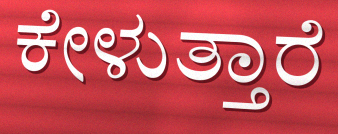
ಕೇಳುತ್ತಾರೆ